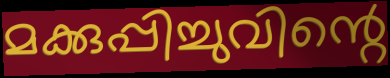
മക്കുപ്പിച്ചുവിന്റെ